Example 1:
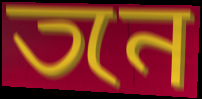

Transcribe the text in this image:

তনে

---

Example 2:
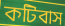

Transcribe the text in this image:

কটিবাস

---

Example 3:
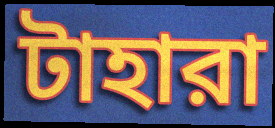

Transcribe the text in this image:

টাহারা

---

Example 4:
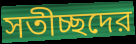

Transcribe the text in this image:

সতীচ্ছদের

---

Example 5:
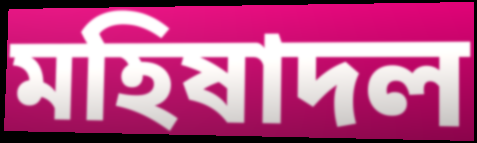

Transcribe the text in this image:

মহিষাদল